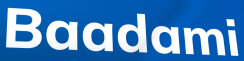
Baadami